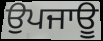
ਉਪਜਾਊ